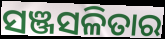
ସଞ୍ଜସଳିତାର